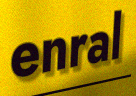
enral